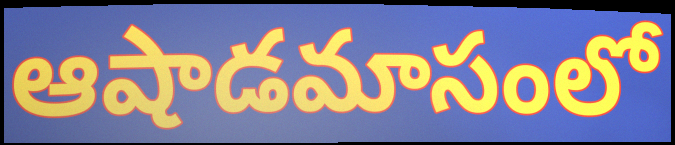
ఆషాడమాసంలో